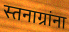
स्तनाग्रांना